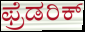
ಫ್ರೆಡರಿಕ್